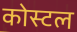
कोस्टल